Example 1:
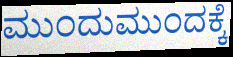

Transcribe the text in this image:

ಮುಂದುಮುಂದಕ್ಕೆ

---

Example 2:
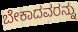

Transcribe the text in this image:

ಬೇಕಾದವರನ್ನು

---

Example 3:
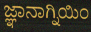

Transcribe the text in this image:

ಜ್ಞಾನಾಗ್ನಿಯಿಂ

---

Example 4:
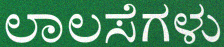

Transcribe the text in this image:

ಲಾಲಸೆಗಳು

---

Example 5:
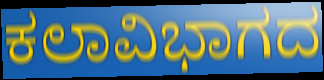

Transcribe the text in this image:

ಕಲಾವಿಭಾಗದ